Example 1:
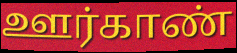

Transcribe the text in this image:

ஊர்காண்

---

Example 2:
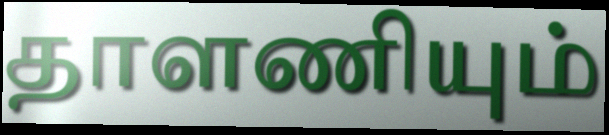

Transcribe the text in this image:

தாளணியும்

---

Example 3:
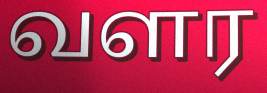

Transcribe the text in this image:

வளர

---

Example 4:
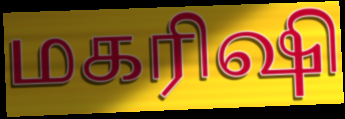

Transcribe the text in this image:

மகரிஷி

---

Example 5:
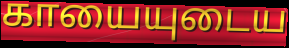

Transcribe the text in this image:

காயையுடைய